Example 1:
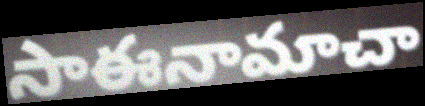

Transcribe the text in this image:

సాఈనామాచా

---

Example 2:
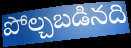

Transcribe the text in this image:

పోల్చబడినది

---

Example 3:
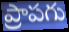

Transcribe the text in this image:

ప్రాపగు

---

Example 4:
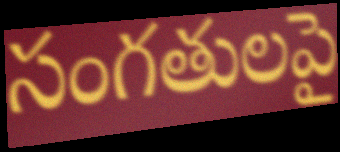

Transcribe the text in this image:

సంగతులపై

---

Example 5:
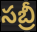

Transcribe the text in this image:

సబ్రీ